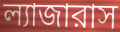
ল্যাজারাস